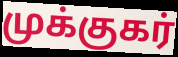
முக்குகர்